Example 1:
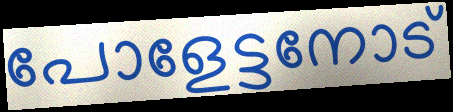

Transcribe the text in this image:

പോളേട്ടനോട്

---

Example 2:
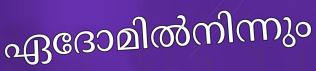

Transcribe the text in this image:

ഏദോമിൽനിന്നും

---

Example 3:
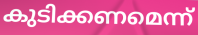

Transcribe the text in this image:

കുടിക്കണമെന്ന്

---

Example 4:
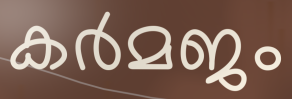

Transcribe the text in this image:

കർമജം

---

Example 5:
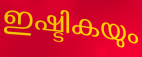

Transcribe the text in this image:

ഇഷ്ടികയും